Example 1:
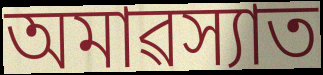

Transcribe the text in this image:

অমাৱস্যাত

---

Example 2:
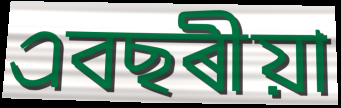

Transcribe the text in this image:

এবছৰীয়া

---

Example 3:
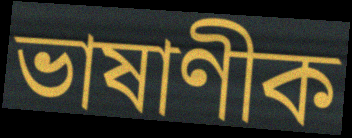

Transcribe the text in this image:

ভাষাণীক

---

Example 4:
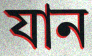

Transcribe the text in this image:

যান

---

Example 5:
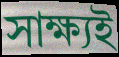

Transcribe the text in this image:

সাক্ষ্যই